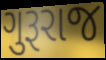
ગુરૂરાજ